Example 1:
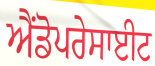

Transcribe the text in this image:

ਐਂਡੋਪਰੇਸਾਈਟ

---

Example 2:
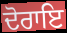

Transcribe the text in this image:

ਦੋਰਾਇ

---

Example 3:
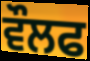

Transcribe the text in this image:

ਵੌਲਫ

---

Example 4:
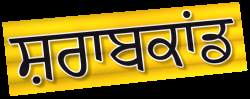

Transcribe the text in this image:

ਸ਼ਰਾਬਕਾਂਡ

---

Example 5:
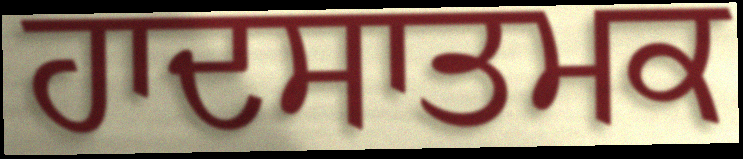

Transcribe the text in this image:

ਹਾਦਸਾਤਮਕ